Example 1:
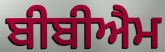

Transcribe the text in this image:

ਬੀਬੀਐਮ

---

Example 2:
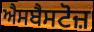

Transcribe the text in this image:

ਐਸਬੈਸਟੋਜ਼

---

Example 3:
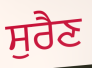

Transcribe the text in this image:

ਸੁਰੈਣ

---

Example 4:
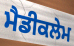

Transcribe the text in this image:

ਮੈਡੀਕਲੇਮ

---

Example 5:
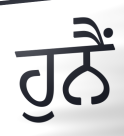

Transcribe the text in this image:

ਹੁਨੈਂ